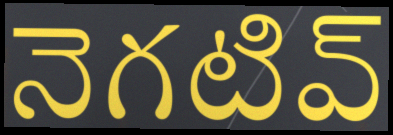
నెగటివ్